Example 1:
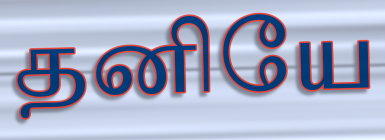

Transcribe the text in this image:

தனியே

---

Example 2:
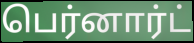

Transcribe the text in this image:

பெர்னார்ட்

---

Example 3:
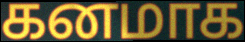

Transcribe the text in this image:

கனமாக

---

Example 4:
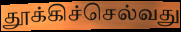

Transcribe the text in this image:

தூக்கிச்செல்வது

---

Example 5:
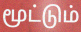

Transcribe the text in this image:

மூட்டும்